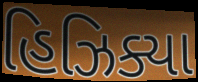
હિઝિક્યા